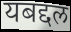
यबद्दल